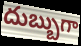
దుబ్బుగా